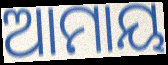
ଆମାୟ